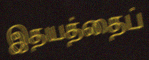
இதயத்தைப்